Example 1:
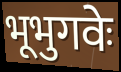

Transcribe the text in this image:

भूभुगवेः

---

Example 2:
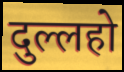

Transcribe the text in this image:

दुल्लहो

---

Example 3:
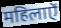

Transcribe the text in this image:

महिलाऐं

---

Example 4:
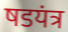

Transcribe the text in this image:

षडयंत्र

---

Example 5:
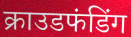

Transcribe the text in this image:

क्राउडफंडिंग